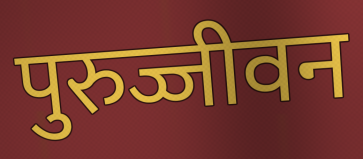
पुरुज्जीवन